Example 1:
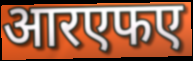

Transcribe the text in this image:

आरएफए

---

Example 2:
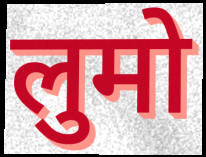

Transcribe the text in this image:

लुमो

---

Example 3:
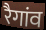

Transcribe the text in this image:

रैगांव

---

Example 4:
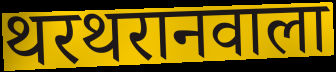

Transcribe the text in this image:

थरथरानवाला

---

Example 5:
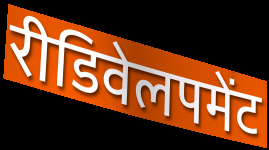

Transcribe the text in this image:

रीडिवेलपमेंट